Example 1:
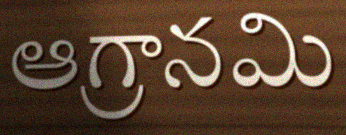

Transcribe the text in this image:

ఆగ్రానమి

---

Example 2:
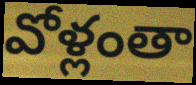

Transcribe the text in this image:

వోళ్లంతా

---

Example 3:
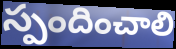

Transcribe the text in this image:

స్పందించాలి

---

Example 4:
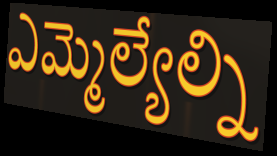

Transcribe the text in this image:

ఎమ్మెల్యేల్ని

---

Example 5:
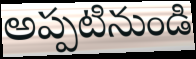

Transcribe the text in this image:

అప్పటినుండి